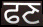
ਫਣ